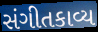
સંગીતકાવ્ય